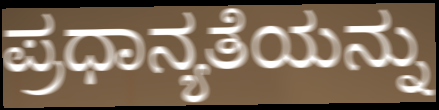
ಪ್ರಧಾನ್ಯತೆಯನ್ನು